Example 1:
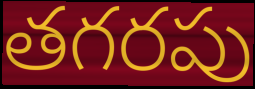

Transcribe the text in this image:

తగరపు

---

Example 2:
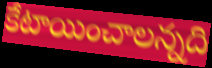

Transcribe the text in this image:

కేటాయించాలన్నది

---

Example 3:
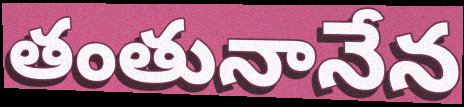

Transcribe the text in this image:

తంతునానేన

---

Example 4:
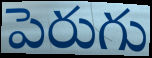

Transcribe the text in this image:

పెరుగు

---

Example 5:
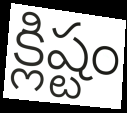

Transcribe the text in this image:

క్లిష్టం